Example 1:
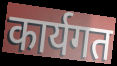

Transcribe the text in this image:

कार्यगत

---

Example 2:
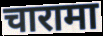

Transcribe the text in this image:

चारामा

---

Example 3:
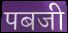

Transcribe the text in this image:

पबजी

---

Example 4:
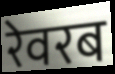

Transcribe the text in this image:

रेवरब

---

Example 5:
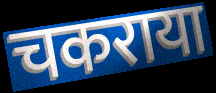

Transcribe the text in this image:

चकराया